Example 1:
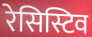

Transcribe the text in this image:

रेसिस्टिव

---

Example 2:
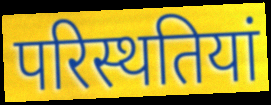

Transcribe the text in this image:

परिस्थतियां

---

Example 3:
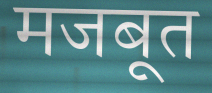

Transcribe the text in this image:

मजबूत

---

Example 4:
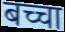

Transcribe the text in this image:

बच्चा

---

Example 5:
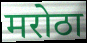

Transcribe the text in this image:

मरोठा